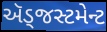
ઍડ્જસ્ટમેન્ટ